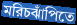
মরিচঝাঁপিতে